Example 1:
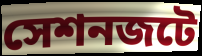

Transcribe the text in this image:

সেশনজটে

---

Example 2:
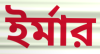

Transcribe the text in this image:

ইর্মার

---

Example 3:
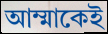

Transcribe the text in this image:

আম্মাকেই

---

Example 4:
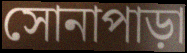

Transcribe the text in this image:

সোনাপাড়া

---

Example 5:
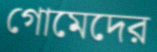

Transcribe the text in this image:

গোমেদের